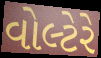
વોલ્ટેરે